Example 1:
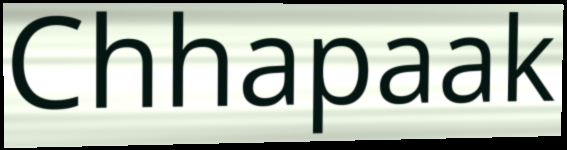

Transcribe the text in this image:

Chhapaak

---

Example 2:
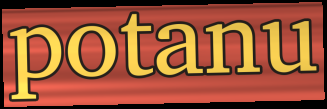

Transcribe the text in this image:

potanu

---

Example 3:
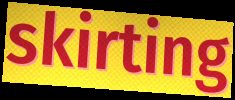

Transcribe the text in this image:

skirting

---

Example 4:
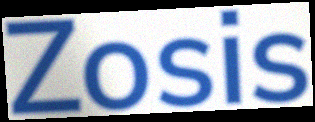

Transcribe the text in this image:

Zosis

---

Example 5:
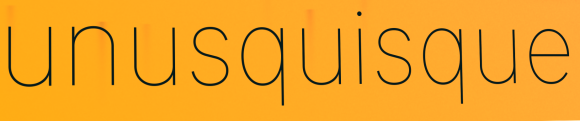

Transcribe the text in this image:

unusquisque